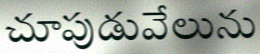
చూపుడువేలును